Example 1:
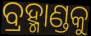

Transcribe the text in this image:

ବ୍ରହ୍ମାଣ୍ଡକୁ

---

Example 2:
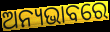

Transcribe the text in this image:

ଅନ୍ୟଭାବରେ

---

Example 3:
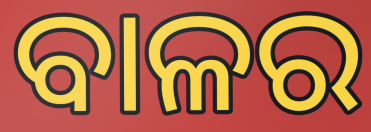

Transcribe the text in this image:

ବାଳର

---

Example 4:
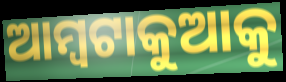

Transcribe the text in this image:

ଆମ୍ବଟାକୁଆକୁ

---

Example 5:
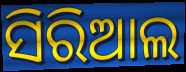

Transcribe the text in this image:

ସିରିଆଲ